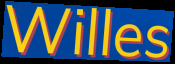
Willes